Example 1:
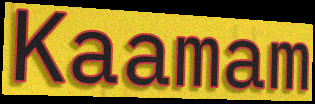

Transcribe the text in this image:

Kaamam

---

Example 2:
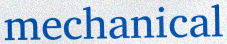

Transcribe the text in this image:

mechanical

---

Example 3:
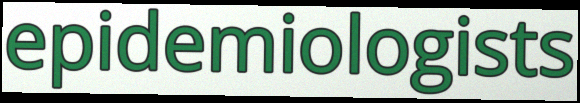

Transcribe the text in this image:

epidemiologists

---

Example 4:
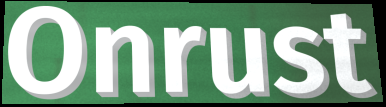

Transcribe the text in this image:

Onrust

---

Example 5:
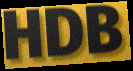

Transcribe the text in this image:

HDB